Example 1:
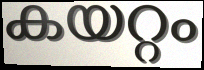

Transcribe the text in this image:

കയറ്റം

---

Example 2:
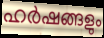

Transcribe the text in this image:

ഹർഷങ്ങളും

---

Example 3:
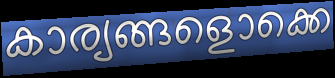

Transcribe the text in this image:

കാര്യങ്ങളൊക്കെ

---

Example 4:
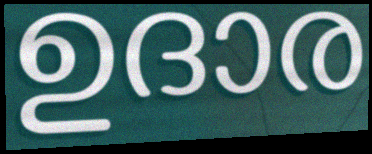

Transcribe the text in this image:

ഉദാര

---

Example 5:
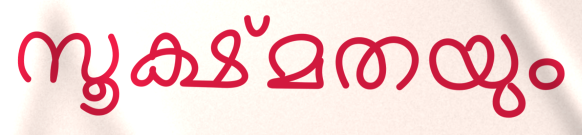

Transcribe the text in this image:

സൂക്ഷ്മതയും